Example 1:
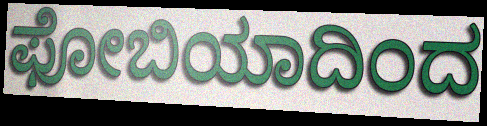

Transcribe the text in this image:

ಫೋಬಿಯಾದಿಂದ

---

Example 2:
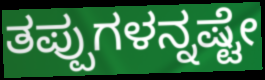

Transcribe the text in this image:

ತಪ್ಪುಗಳನ್ನಷ್ಟೇ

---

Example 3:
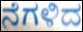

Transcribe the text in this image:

ನೆಗಳಿದ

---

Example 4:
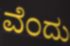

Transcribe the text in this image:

ವೆಂದು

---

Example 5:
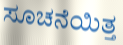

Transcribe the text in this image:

ಸೂಚನೆಯಿತ್ತ